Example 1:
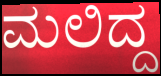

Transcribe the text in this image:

ಮಲಿದ್ದ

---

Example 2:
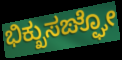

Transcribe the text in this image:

ಭಿಕ್ಖುಸಙ್ಘೋ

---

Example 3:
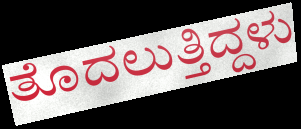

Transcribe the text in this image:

ತೊದಲುತ್ತಿದ್ದಳು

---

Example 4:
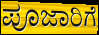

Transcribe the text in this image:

ಪೂಜಾರಿಗೆ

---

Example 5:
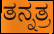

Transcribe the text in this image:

ತನ್ನತ್ರ